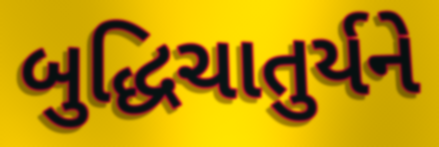
બુદ્ધિચાતુર્યને